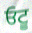
ਓਟੂ